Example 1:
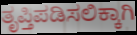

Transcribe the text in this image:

ತೃಪ್ತಿಪಡಿಸಲಿಕ್ಕಾಗಿ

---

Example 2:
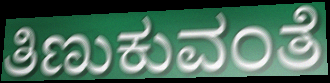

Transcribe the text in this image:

ತಿಣುಕುವಂತೆ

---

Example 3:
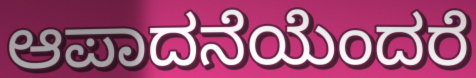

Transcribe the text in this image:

ಆಪಾದನೆಯೆಂದರೆ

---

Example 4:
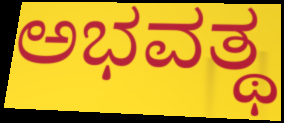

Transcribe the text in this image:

ಅಭವತ್ಥ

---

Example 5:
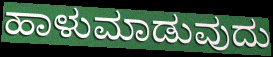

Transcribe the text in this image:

ಹಾಳುಮಾಡುವುದು